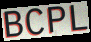
BCPL